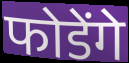
फोडेंगे